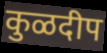
कुळदीप